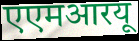
एएमआरयू